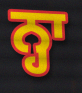
ਨ੍ਹਾ